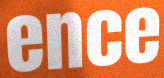
ence